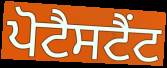
ਪੋਟੈਸਟੈਂਟ